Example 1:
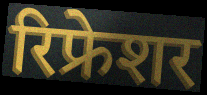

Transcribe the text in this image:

रिफ्रेशर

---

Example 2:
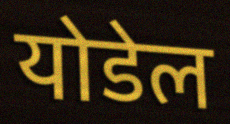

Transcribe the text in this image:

योडेल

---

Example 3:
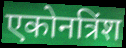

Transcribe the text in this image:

एकोनत्रिंश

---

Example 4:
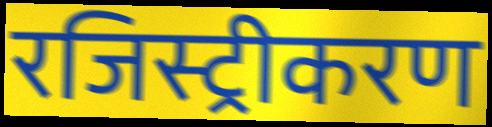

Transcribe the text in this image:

रजिस्ट्रीकरण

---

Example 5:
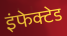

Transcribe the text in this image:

इंफेक्टेड